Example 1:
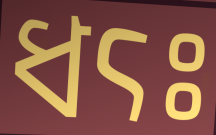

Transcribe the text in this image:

ধৎঃ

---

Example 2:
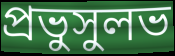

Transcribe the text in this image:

প্রভুসুলভ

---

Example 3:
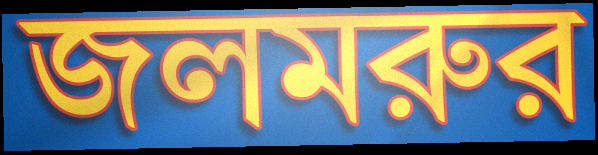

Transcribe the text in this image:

জলমরুর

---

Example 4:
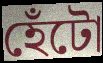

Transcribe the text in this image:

হেঁটো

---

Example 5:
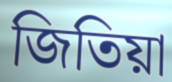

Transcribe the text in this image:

জিতিয়া